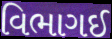
વિભાગઈ